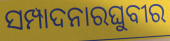
ସମ୍ପାଦନାରଘୁବୀର